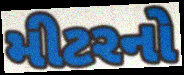
મીટરનો